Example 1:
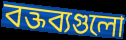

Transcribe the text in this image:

বক্তব্যগুলো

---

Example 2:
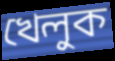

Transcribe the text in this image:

খেলুক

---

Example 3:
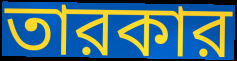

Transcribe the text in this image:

তারকার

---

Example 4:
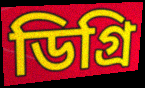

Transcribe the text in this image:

ডিগ্রি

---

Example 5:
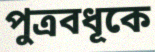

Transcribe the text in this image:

পুত্রবধূকে